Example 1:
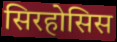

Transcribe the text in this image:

सिरहोसिस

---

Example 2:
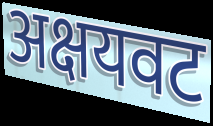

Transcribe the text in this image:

अक्षयवट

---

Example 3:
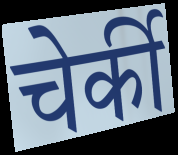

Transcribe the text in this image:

चेर्की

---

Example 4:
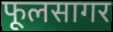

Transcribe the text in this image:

फूलसागर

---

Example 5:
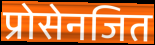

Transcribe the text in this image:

प्रोसेनजित